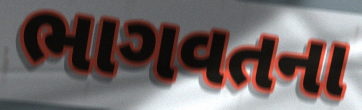
ભાગવતના